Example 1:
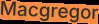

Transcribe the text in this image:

Macgregor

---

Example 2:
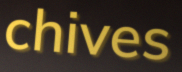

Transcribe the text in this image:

chives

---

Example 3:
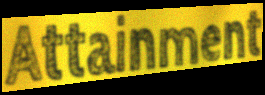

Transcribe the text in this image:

Attainment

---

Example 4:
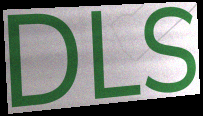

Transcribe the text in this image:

DLS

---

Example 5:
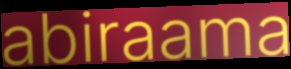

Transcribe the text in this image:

abiraama